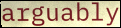
arguably